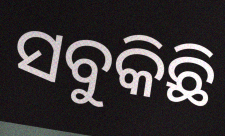
ସବୁକିଛି